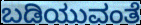
ಬಡಿಯುವಂತೆ